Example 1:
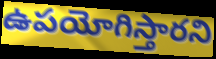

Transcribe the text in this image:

ఉపయోగిస్తారని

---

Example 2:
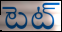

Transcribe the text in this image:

టెట్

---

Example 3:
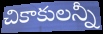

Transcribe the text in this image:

చికాకులన్నీ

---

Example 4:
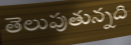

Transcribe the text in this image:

తెలుపుతున్నది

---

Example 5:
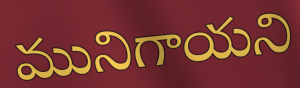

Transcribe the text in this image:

మునిగాయని